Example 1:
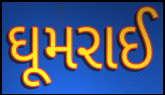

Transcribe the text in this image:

ઘૂમરાઈ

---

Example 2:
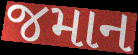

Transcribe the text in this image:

જમાન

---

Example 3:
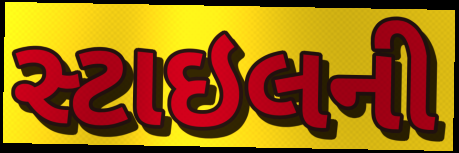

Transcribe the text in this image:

સ્ટાઇલની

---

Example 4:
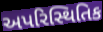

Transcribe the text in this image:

અપરિસ્થિતિક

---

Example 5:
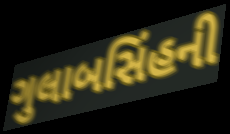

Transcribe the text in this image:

ગુલાબસિંહની